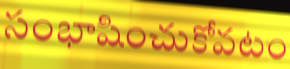
సంభాషించుకోవటం